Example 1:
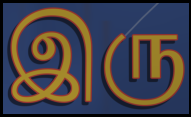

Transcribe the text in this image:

இரு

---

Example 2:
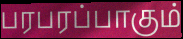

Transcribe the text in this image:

பரபரப்பாகும்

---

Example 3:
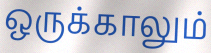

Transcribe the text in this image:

ஒருக்காலும்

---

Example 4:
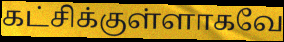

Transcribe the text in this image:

கட்சிக்குள்ளாகவே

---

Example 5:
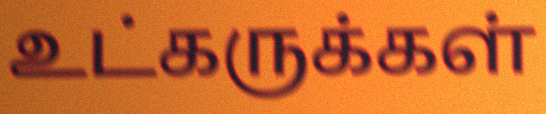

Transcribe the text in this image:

உட்கருக்கள்